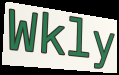
Wkly